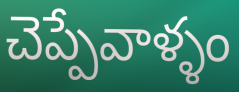
చెప్పేవాళ్ళం